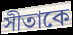
সীতাকে